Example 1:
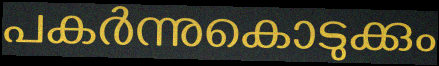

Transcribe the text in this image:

പകർന്നുകൊടുക്കും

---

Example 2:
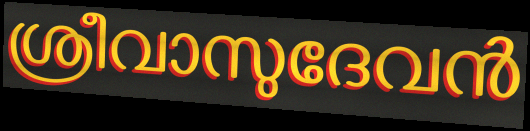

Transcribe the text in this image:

ശ്രീവാസുദേവൻ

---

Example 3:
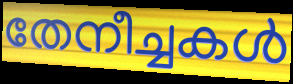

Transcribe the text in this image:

തേനീച്ചകൾ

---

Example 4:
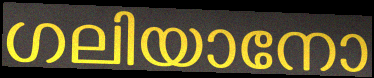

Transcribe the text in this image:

ഗലിയാനോ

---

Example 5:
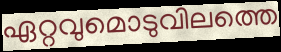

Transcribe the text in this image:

ഏറ്റവുമൊടുവിലത്തെ